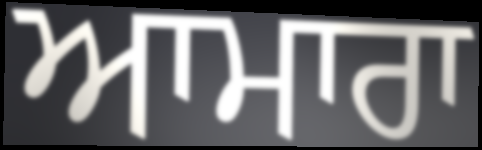
ਆਮਾਰਾ